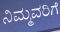
ನಿಮ್ಮವರಿಗೆ